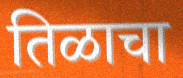
तिळाचा